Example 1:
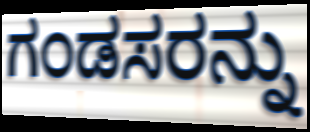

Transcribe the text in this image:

ಗಂಡಸರನ್ನು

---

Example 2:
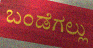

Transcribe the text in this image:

ಬಂಡೆಗಲ್ಲು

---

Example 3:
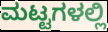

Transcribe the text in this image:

ಮಟ್ಟಗಳಲ್ಲಿ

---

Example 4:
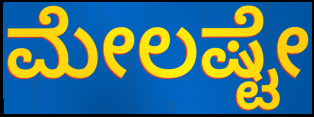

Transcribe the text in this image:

ಮೇಲಷ್ಟೇ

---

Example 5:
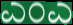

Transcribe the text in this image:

ಎಂಎ